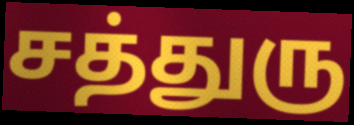
சத்துரு